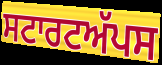
ਸਟਾਰਟਅੱਪਸ